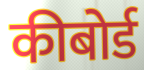
कीबोर्ड